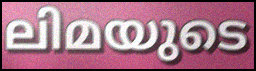
ലിമയുടെ